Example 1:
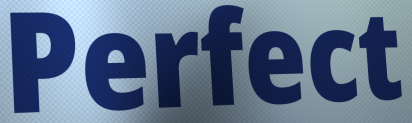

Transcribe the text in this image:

Perfect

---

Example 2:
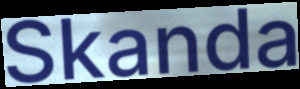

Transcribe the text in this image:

Skanda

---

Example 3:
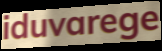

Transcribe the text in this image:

iduvarege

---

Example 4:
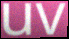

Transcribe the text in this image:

uv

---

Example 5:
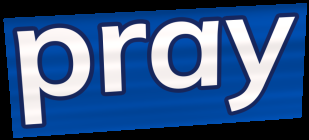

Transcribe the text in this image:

pray